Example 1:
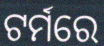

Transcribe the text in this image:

ଟର୍ମରେ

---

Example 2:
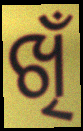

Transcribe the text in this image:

ଖିଁ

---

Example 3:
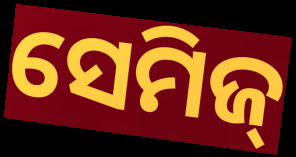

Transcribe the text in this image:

ସେମିଜ୍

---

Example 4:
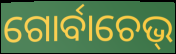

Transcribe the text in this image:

ଗୋର୍ବାଚେଭ୍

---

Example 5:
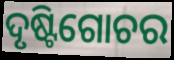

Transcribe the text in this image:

ଦୃଷ୍ଟିଗୋଚର